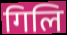
गिलि